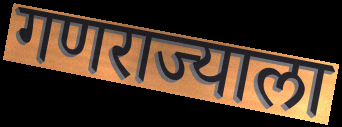
गणराज्याला